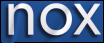
nox